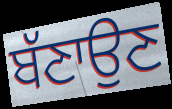
ਬੱਣਾਉਣ